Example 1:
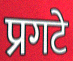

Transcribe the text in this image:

प्रगटे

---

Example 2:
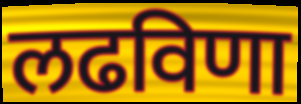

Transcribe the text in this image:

लढविणा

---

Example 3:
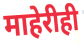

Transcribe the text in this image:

माहेरीही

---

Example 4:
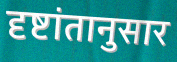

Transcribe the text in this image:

दृष्टांतानुसार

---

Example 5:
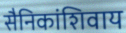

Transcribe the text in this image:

सैनिकांशिवाय